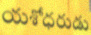
యశోధరుడు